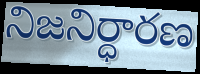
నిజనిర్ధారణ